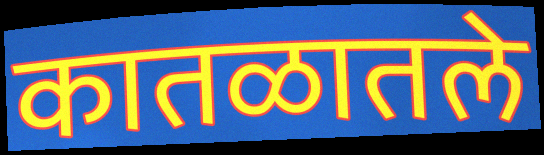
कातळातले